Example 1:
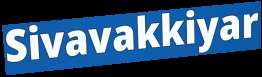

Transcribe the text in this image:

Sivavakkiyar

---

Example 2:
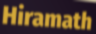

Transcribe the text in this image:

Hiramath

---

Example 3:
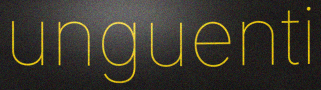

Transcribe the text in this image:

unguenti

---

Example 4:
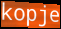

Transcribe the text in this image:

kopje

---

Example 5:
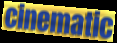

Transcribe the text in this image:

cinematic